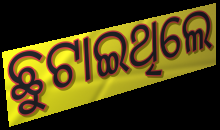
ଛୁଟାଇଥିଲେ